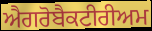
ਐਗਰੋਬੈਕਟੀਰੀਅਮ